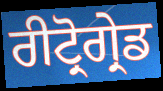
ਰੀਟ੍ਰੋਗ੍ਰੇਡ